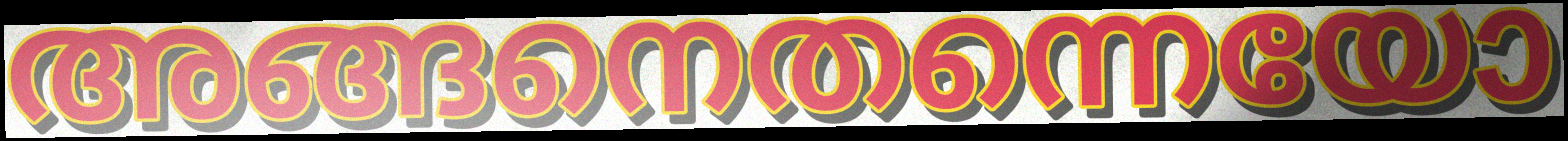
അങ്ങനെതന്നെയോ